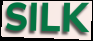
SILK